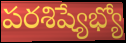
పరశిష్యేభ్యో